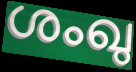
ശംഖു